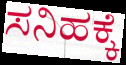
ಸನಿಹಕ್ಕೆ